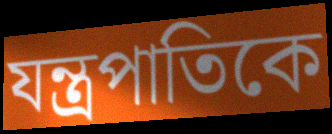
যন্ত্রপাতিকে